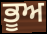
ਭੂਅ